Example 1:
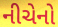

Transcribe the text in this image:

નીચેનો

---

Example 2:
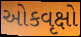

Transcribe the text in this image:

ઓકવૃક્ષો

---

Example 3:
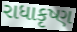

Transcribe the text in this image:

રાધાકૃષ્ણ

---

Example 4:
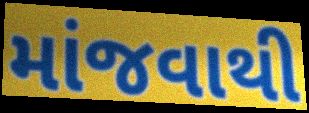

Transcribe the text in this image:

માંજવાથી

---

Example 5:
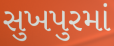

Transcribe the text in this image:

સુખપુરમાં